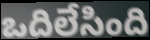
ఒదిలేసింది